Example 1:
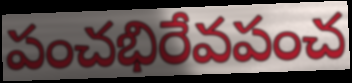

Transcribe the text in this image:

పంచభిరేవపంచ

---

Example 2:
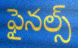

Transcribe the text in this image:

ఫైనల్స్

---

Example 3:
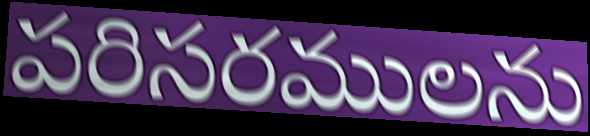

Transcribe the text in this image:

పరిసరములను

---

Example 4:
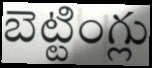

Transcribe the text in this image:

బెట్టింగ్లు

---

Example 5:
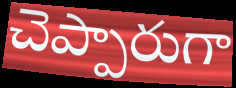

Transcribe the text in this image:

చెప్పారుగా